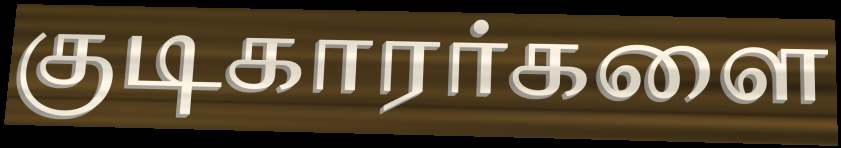
குடிகாரர்களை